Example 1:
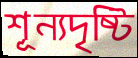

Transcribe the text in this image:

শূন্যদৃষ্টি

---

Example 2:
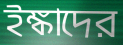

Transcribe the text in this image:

ইঙ্কাদের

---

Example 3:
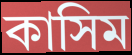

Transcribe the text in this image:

কাসিম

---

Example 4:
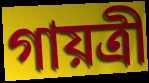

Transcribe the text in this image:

গায়ত্রী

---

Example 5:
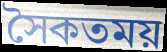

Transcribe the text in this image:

সৈকতময়